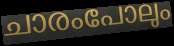
ചാരംപോലും